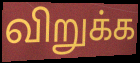
விறுக்க